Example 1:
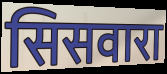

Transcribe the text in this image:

सिसवारा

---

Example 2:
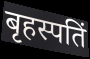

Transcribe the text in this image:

बृहस्पतिं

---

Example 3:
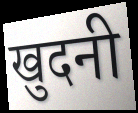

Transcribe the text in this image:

खुदनी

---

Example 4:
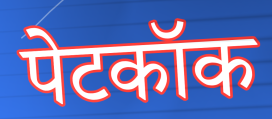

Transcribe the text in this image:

पेटकॉक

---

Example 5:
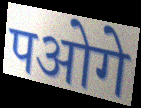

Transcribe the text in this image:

पओगे